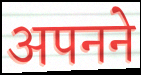
अपनने